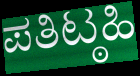
ಪತಿಟ್ಠಹಿ